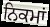
ਨਿਕਮਾਂ